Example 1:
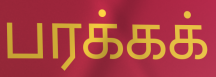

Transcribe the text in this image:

பரக்கக்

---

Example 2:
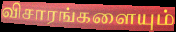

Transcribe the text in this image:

விசாரங்களையும்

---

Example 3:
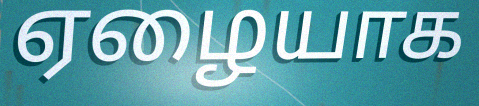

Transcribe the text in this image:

ஏழையாக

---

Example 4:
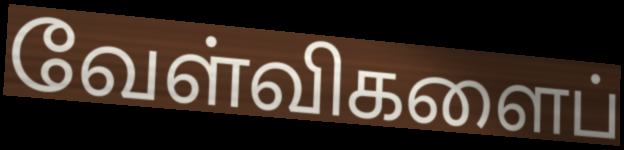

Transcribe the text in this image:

வேள்விகளைப்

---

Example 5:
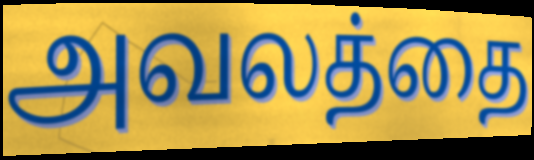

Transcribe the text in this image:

அவலத்தை